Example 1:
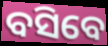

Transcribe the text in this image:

ବସିବେ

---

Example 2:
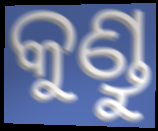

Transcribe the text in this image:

କୁଣ୍ଡୁ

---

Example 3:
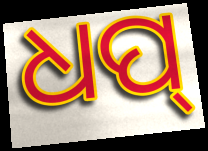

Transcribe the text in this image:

ଧପ୍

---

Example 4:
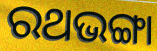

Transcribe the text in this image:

ରଥଭଙ୍ଗା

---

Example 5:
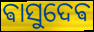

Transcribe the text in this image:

ଵାସୁଦେଵ